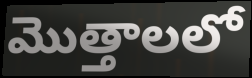
మొత్తాలలో